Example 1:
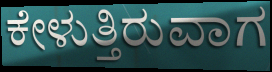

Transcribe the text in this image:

ಕೇಳುತ್ತಿರುವಾಗ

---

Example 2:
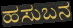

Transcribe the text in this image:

ಹಸುಬನ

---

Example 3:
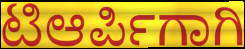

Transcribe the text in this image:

ಟಿಆರ್ಪಿಗಾಗಿ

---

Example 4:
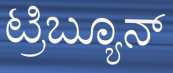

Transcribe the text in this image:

ಟ್ರಿಬ್ಯೂನ್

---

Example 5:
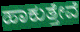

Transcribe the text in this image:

ಹಾಕುತ್ತೇವೆ